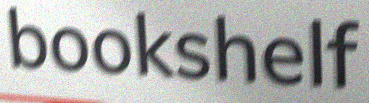
bookshelf